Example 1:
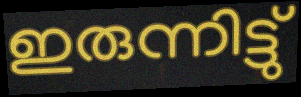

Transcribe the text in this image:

ഇരുന്നിട്ടു്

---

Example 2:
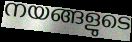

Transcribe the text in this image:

നയങ്ങളുടെ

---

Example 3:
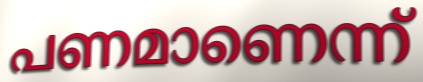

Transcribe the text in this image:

പണമാണെന്ന്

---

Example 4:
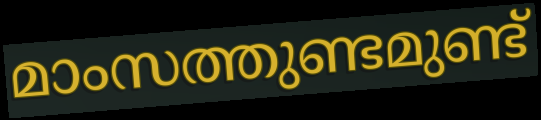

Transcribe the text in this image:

മാംസത്തുണ്ടമുണ്ട്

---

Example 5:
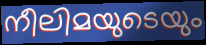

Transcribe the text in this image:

നീലിമയുടെയും